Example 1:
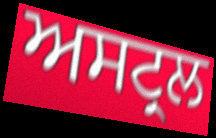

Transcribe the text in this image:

ਅਸਟ੍ਰਲ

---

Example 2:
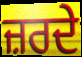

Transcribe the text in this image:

ਜ਼ਰਦੇ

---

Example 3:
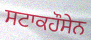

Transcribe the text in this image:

ਸਟਾਕਹੌਸੇਨ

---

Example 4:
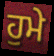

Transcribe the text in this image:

ਹੁਮੇ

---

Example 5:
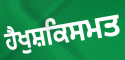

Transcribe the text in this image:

ਹੈਖੁਸ਼ਕਿਸਮਤ